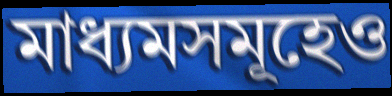
মাধ্য়মসমূহেও